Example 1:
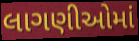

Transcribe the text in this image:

લાગણીઓમાં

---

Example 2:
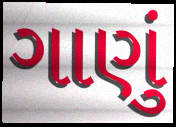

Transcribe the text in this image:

ગાણું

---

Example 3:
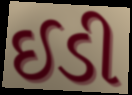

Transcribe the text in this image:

ઈડી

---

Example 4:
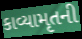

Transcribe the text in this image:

કાવ્યામૃતની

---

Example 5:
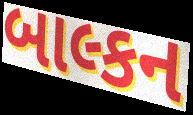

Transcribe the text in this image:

બાલ્કન